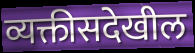
व्यक्तीसदेखील